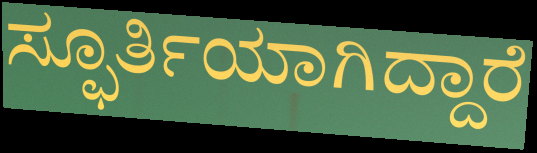
ಸ್ಫೂರ್ತಿಯಾಗಿದ್ದಾರೆ